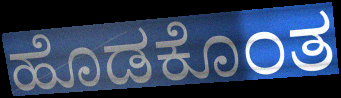
ಹೊಡಕೊಂತ